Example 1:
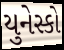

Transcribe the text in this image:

યુનેસ્કો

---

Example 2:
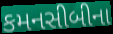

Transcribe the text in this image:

કમનસીબીના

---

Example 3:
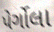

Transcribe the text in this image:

પેર્ગોલા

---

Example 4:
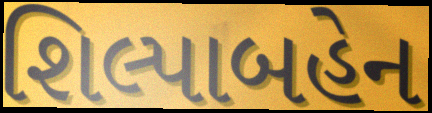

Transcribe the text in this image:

શિલ્પાબહેન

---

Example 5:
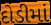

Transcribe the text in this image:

દોડીમાં